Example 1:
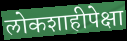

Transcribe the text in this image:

लोकशाहीपेक्षा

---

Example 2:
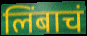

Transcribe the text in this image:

लिंबाचं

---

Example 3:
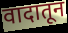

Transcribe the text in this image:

वादातून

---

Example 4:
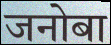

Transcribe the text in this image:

जनोबा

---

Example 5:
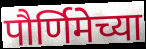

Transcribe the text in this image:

पौर्णिमेच्या